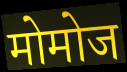
मोमोज